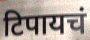
टिपायचं